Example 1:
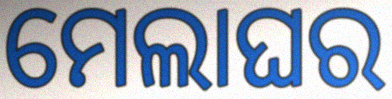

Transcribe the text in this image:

ମେଲାଘର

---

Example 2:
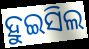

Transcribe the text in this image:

ହୁଇସିଲ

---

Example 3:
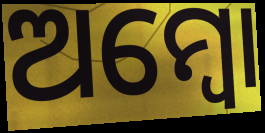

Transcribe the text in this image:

ଅମ୍ୱୋ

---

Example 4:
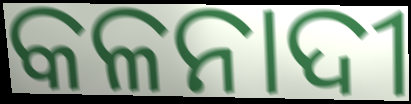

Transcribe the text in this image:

କଳନାଦୀ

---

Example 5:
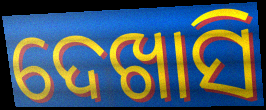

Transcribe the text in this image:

ଦେଖାସି